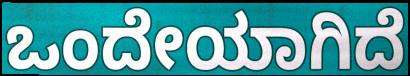
ಒಂದೇಯಾಗಿದೆ